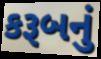
કરૂબનું